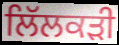
ਲਿੱਲਕੜੀ